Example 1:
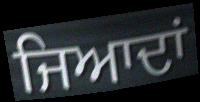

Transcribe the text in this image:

ਜਿਆਦਾਂ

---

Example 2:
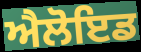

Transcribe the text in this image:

ਐਲੋਇਡ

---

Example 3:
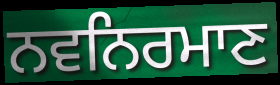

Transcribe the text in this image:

ਨਵਨਿਰਮਾਣ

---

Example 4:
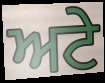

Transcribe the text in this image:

ਅਟੇ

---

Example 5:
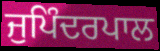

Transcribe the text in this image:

ਜੁਪਿੰਦਰਪਾਲ